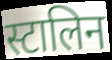
स्टालिन